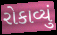
રોકાવ્યું